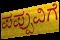
ಪಪ್ಪುವಿಗೆ